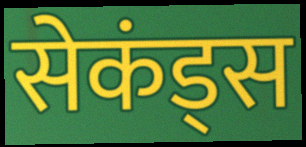
सेकंड्स